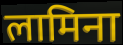
लामिना